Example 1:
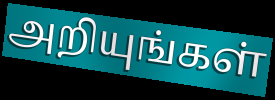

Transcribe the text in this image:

அறியுங்கள்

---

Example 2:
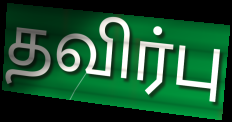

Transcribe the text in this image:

தவிர்பு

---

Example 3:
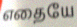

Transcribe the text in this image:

எதையே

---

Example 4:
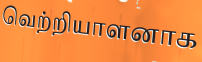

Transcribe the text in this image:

வெற்றியாளனாக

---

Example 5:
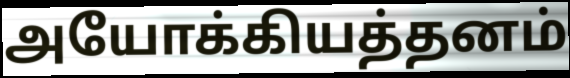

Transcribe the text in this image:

அயோக்கியத்தனம்